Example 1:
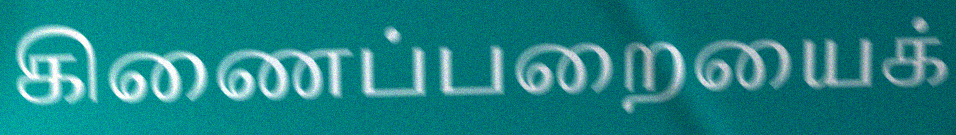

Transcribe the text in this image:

கிணைப்பறையைக்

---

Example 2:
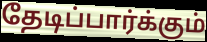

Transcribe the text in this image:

தேடிப்பார்க்கும்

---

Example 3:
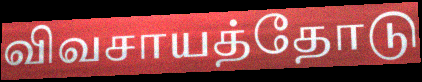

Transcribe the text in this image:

விவசாயத்தோடு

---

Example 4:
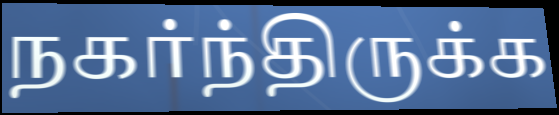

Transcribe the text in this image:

நகர்ந்திருக்க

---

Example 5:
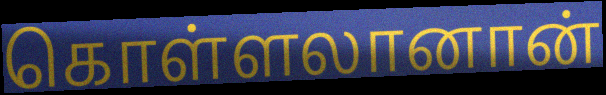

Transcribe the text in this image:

கொள்ளலானான்